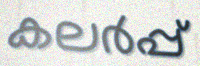
കലർപ്പ്